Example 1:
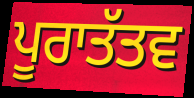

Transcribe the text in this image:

ਪੂਰਾਤੱਤਵ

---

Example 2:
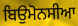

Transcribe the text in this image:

ਬਿਉਮੋਨਸੀਆ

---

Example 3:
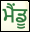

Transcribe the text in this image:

ਮੈਂਡੂ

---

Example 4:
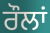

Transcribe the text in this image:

ਰੌਲਾਂ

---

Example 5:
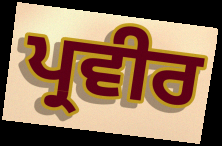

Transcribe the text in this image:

ਪ੍ਰਵੀਰ